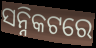
ସନ୍ନିକଟରେ